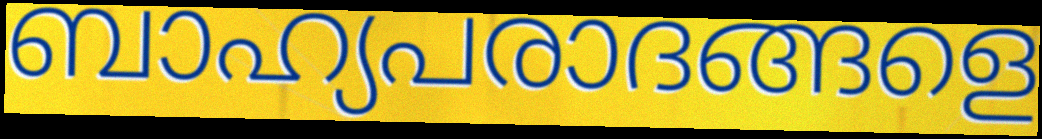
ബാഹ്യപരാദങ്ങളെ